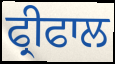
ਫ੍ਰੀਫਾਲ